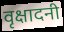
वृक्षादनी